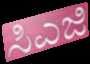
ಸಿಎಜಿ